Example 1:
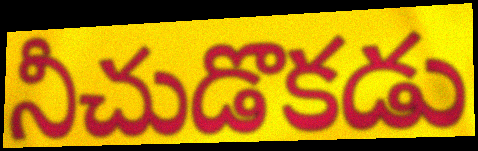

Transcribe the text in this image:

నీచుడొకడు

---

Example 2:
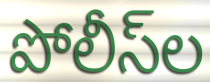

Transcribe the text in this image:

పోలీస్‌ల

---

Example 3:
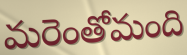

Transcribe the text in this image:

మరెంతోమంది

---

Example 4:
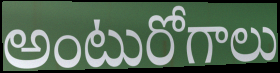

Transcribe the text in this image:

అంటురోగాలు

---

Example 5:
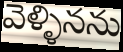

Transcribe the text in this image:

వెళ్ళినను